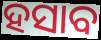
ହସାବ